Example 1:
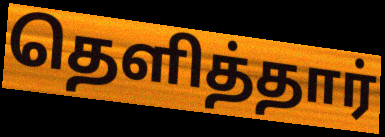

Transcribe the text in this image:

தெளித்தார்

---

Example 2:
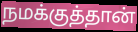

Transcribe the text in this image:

நமக்குத்தான்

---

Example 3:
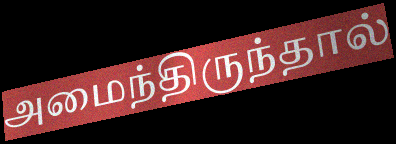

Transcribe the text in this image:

அமைந்திருந்தால்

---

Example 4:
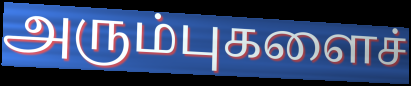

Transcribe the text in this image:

அரும்புகளைச்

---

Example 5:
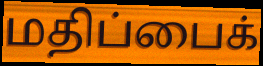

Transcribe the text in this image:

மதிப்பைக்